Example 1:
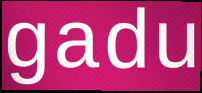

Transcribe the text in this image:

gadu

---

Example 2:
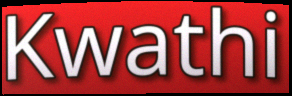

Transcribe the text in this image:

Kwathi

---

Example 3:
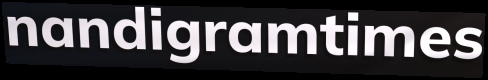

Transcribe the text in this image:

nandigramtimes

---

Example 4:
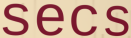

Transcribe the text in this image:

secs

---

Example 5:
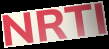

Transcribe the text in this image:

NRTI